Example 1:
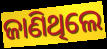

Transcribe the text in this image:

ଜାଣିଥିଲେ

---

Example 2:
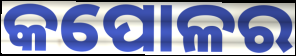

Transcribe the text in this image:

କପୋଳର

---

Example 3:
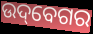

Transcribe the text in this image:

ଉଦ୍‌ବେଗର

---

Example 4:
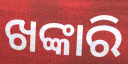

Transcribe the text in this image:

ଖଙ୍କାରି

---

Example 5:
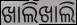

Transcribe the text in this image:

ଖାଲିଖାଲି